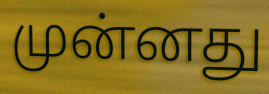
முன்னது